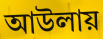
আউলায়